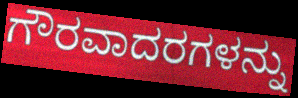
ಗೌರವಾದರಗಳನ್ನು